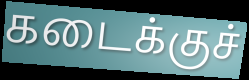
கடைக்குச்